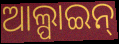
ଆଲ୍ପାଇନ୍